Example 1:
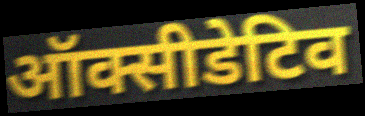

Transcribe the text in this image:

ऑक्सीडेटिव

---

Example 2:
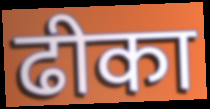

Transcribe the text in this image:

ढीका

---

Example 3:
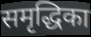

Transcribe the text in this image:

समृद्धिका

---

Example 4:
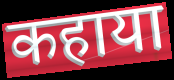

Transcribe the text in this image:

कहाया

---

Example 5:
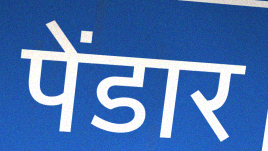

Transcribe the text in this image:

पेंडार